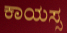
ಕಾಯಸ್ಸ